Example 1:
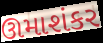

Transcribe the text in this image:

ઊમાશંકર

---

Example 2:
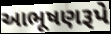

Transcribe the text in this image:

આભૂષણરૂપે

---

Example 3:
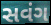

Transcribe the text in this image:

સવંગ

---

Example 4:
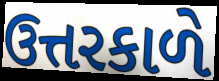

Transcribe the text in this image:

ઉત્તરકાળે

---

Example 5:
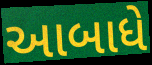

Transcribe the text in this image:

આબાધે